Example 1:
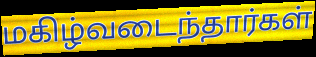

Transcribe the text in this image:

மகிழ்வடைந்தார்கள்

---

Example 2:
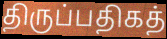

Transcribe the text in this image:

திருப்பதிகத்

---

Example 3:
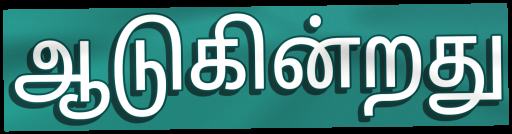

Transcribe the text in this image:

ஆடுகின்றது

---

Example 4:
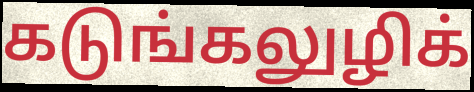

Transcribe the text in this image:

கடுங்கலுழிக்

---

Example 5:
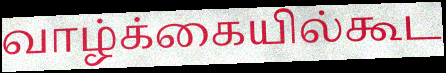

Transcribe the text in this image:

வாழ்க்கையில்கூட